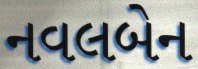
નવલબેન